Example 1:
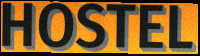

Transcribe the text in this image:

HOSTEL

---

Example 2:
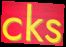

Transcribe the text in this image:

cks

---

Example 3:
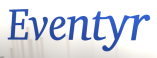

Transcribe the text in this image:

Eventyr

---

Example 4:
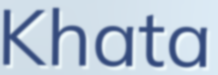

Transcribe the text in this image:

Khata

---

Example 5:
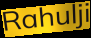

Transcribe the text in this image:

Rahulji